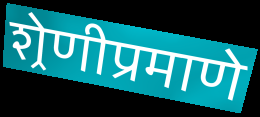
श्रेणीप्रमाणे